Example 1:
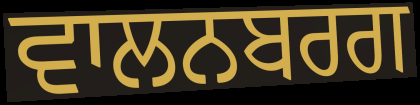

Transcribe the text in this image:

ਵਾਲਨਬਰਗ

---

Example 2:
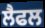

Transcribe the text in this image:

ਲੈਫਲ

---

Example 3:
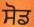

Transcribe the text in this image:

ਸੋਡ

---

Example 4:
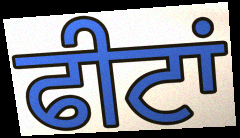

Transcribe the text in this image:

ਫੀਟਾਂ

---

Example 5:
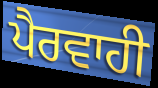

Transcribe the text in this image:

ਪੈਰਵਾਹੀ